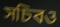
সচিবও